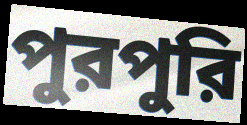
পুরপুরি